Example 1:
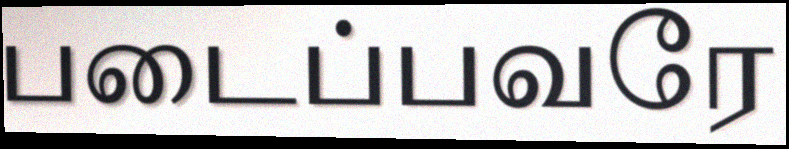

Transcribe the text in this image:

படைப்பவரே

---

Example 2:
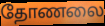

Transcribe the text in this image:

தோணலை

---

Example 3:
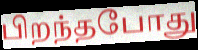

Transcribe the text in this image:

பிறந்தபோது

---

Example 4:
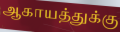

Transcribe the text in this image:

ஆகாயத்துக்கு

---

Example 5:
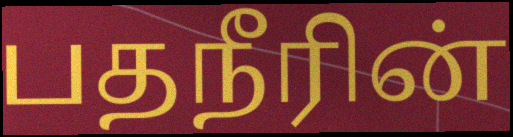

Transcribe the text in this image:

பதநீரின்